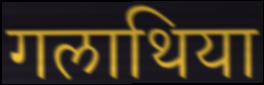
गलाथिया